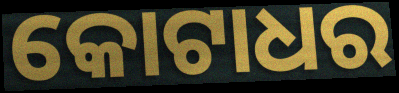
କୋଟାଧର